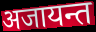
अजायन्त